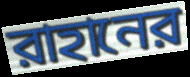
রাহানের